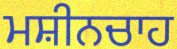
ਮਸ਼ੀਨਚਾਹ